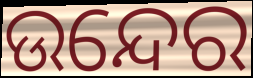
ଉନ୍ଦେର